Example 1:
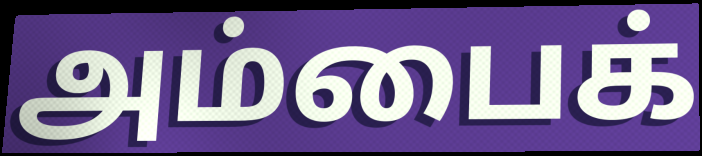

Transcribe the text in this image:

அம்பைக்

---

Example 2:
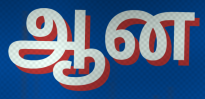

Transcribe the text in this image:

ஆன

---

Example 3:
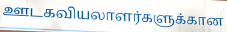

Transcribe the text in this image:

ஊடகவியலாளர்களுக்கான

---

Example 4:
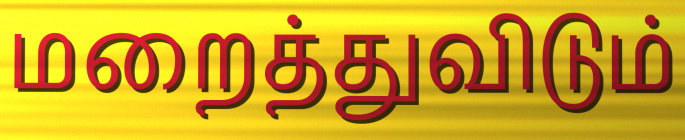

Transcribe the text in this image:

மறைத்துவிடும்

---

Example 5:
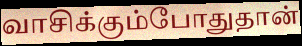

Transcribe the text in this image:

வாசிக்கும்போதுதான்